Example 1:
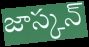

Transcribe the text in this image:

జాస్కన్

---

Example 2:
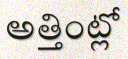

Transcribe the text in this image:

అత్తింట్లో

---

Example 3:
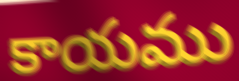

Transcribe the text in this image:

కాయము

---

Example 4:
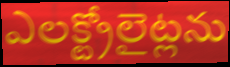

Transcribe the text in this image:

ఎలక్ట్రోలైట్లను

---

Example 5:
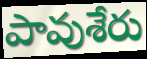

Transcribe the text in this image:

పావుశేరు